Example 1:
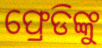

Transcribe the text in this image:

ଫ୍ରେଡିଙ୍କୁ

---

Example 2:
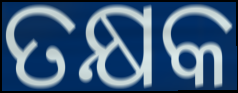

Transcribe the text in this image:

ତକ୍ଷକ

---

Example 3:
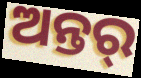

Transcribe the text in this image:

ଅନ୍ତର୍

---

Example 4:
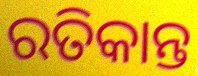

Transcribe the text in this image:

ରତିକାନ୍ତ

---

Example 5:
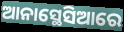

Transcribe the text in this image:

ଆନାସ୍ଥେସିଆରେ